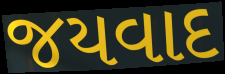
જયવાદ